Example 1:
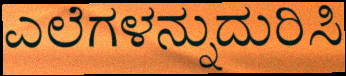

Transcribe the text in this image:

ಎಲೆಗಳನ್ನುದುರಿಸಿ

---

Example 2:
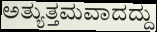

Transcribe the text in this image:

ಅತ್ಯುತ್ತಮವಾದದ್ದು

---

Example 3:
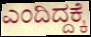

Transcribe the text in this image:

ಎಂದಿದ್ದಕ್ಕೆ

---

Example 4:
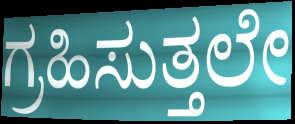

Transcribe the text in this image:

ಗ್ರಹಿಸುತ್ತಲೇ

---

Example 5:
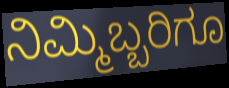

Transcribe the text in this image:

ನಿಮ್ಮಿಬ್ಬರಿಗೂ